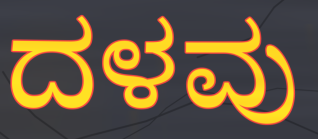
ದಳವು